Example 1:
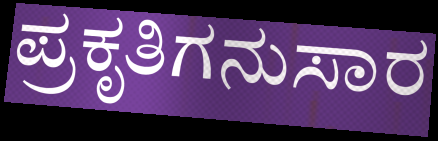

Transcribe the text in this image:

ಪ್ರಕೃತಿಗನುಸಾರ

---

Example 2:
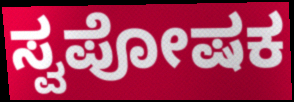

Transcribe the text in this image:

ಸ್ವಪೋಷಕ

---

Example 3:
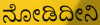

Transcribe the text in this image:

ನೋಡಿದೀನಿ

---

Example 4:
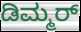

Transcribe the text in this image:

ಡಿಮ್ಮರ್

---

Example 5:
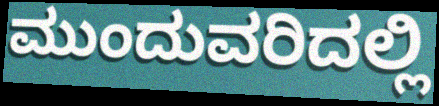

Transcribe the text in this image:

ಮುಂದುವರಿದಲ್ಲಿ